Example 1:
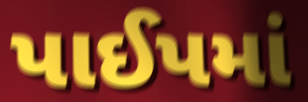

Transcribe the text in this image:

પાઈપમાં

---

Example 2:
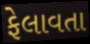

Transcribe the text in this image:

ફેલાવતા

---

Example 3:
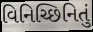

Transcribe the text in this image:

વિનિચ્છિનિતું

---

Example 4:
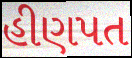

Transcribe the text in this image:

હીણપત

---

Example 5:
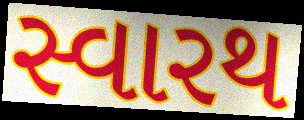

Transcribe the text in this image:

સ્વારથ